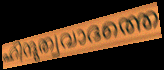
ഹിന്ദുത്വവാദത്തെ